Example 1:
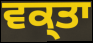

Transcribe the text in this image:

ਵਕ੍ਤਾ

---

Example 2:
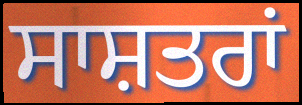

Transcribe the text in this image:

ਸਾਸ਼ਤਰਾਂ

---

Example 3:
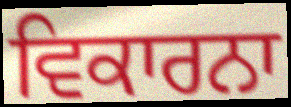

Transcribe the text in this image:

ਵਿਕਾਰਨਾ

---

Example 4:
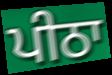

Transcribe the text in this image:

ਪੀਠਾ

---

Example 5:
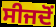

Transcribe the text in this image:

ਸੀਜਦੋਂ